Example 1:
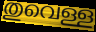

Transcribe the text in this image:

തുവെള്ള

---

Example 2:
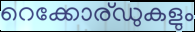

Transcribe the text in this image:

റെക്കോര്ഡുകളും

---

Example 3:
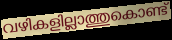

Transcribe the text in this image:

വഴികളില്ലാത്തുകൊണ്ട്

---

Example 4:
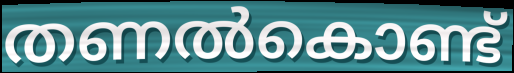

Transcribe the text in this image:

തണൽകൊണ്ട്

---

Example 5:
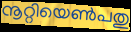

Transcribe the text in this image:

നൂറ്റിയെൺപതു